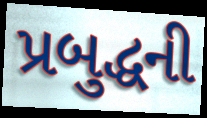
પ્રબુદ્ધની